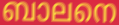
ബാലനെ